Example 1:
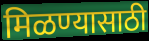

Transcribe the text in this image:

मिळण्‍यासाठी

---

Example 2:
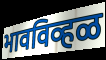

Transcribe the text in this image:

भावविव्हळ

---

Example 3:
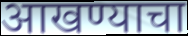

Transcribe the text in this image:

आखण्याचा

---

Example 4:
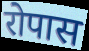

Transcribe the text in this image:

रोपास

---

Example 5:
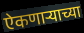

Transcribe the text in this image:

ऐकणाऱ्याच्या